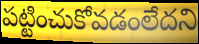
పట్టించుకోవడంలేదని